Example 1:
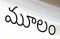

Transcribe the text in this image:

మూలం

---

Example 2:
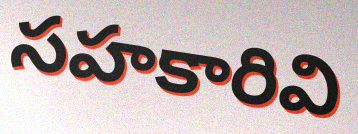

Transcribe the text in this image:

సహకారివి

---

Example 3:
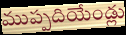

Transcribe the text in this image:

ముప్పదియేండ్లు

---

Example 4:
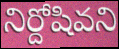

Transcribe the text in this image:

నిర్దోషివని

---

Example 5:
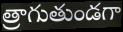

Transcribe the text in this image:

త్రాగుతుండగా